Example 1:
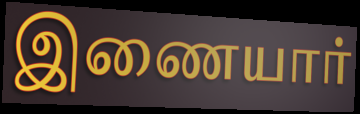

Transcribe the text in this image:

இணையார்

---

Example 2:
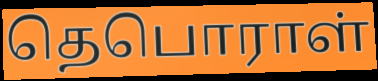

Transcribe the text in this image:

தெபொராள்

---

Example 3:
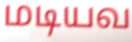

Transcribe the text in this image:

மடியவ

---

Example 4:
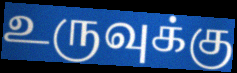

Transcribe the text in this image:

உருவுக்கு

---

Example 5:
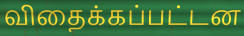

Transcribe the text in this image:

விதைக்கப்பட்டன